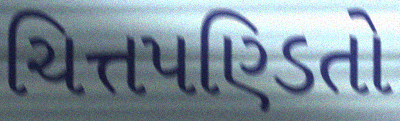
ચિત્તપણ્ડિતો